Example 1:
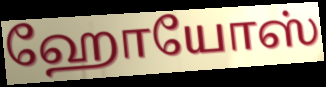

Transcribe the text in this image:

ஹோயோஸ்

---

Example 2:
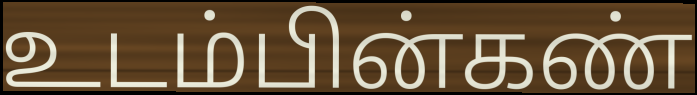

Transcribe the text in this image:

உடம்பின்கண்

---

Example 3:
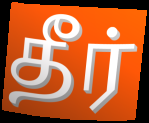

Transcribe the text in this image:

தீர்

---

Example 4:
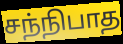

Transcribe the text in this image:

சந்நிபாத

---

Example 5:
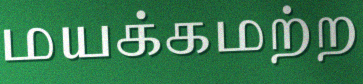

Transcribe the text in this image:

மயக்கமற்ற